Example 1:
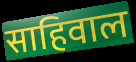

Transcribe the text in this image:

साहिवाल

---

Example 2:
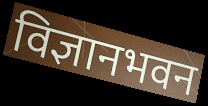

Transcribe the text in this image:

विज्ञानभवन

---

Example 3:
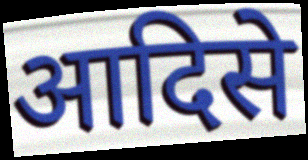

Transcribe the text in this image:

आदिसे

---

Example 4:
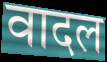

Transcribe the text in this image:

वादल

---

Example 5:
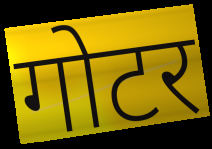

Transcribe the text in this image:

गोटर